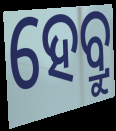
ହେବ୍ରୁ